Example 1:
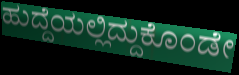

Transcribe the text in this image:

ಹುದ್ದೆಯಲ್ಲಿದ್ದುಕೊಂಡೇ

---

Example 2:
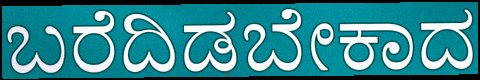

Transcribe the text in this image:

ಬರೆದಿಡಬೇಕಾದ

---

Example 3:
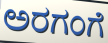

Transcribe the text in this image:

ಅರಗಂಗೆ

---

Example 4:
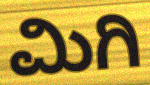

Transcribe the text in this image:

ಮಿಗಿ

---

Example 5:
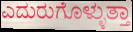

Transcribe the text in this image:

ಎದುರುಗೊಳ್ಳುತ್ತಾ